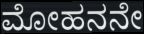
ಮೋಹನನೇ